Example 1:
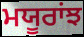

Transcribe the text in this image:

ਮਯੂਰਾਂਝ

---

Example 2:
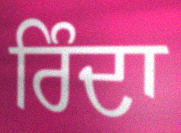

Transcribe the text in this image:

ਰਿੰਦਾ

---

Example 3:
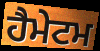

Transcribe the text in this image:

ਹੈਮੇਟਮ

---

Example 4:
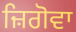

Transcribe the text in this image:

ਜ਼ਿਗੋਵਾ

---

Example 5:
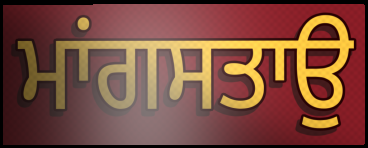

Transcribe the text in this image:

ਮਾਂਗਸਤਾਉ